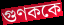
গুণককে